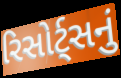
રિસોર્ટ્સનું